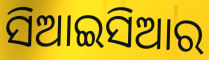
ସିଆଇସିଆର